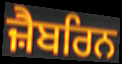
ਜ਼ੈਬਰਿਨ